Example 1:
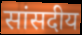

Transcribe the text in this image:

सांसदीय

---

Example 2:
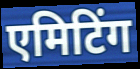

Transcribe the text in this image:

एमिटिंग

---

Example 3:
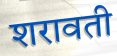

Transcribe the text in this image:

शरावती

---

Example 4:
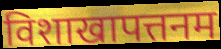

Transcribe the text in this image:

विशाखापत्तनम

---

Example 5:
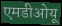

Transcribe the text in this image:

एमडीओयू